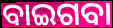
ବାଇଗବା